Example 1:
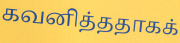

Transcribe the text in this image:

கவனித்ததாகக்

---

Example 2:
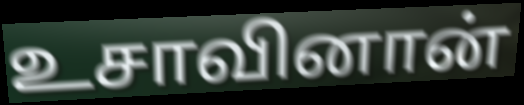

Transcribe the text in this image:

உசாவினான்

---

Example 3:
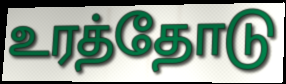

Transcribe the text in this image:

உரத்தோடு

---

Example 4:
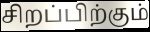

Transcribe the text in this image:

சிறப்பிற்கும்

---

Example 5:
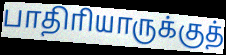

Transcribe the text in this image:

பாதிரியாருக்குத்